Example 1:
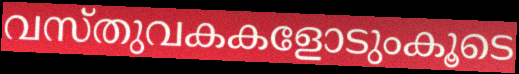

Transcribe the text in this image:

വസ്തുവകകളോടുംകൂടെ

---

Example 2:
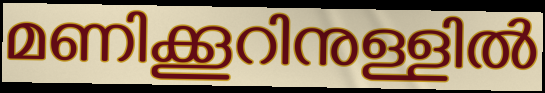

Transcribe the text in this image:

മണിക്കൂറിനുള്ളിൽ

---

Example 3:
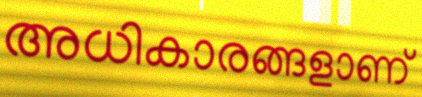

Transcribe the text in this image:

അധികാരങ്ങളാണ്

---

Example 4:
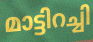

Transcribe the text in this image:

മാട്ടിറച്ചി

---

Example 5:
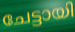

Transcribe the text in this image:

ചേട്ടായി